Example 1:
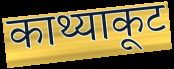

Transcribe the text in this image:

काथ्याकूट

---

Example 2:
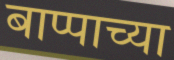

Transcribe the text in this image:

बाप्पाच्या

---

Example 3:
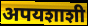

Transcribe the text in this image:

अपयशाशी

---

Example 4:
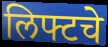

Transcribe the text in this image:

लिफ्टचे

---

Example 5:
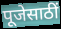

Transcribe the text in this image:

पूजेसाठीं